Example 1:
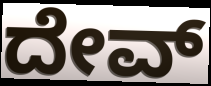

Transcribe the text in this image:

ದೇವ್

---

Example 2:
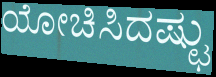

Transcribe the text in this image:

ಯೋಚಿಸಿದಷ್ಟು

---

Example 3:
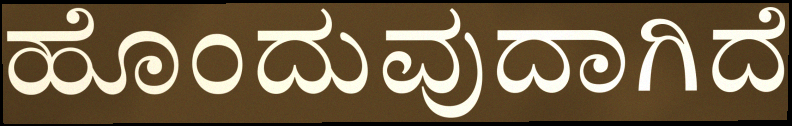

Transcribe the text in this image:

ಹೊಂದುವುದಾಗಿದೆ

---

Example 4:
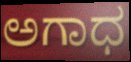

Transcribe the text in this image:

ಅಗಾಧ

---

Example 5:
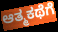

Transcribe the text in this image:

ಆತ್ಮಕಥೆಗೆ